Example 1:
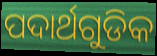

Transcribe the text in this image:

ପଦାର୍ଥଗୁଡିକ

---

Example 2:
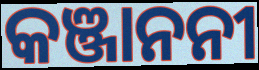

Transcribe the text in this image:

କଞ୍ଜାନନୀ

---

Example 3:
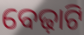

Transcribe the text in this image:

ବେଢ଼ାଟି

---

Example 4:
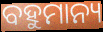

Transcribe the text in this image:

ବହୁମାନ୍ୟ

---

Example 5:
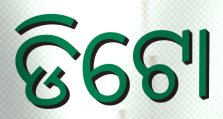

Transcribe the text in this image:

ଡିଟୋ